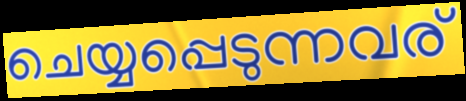
ചെയ്യപ്പെടുന്നവര്